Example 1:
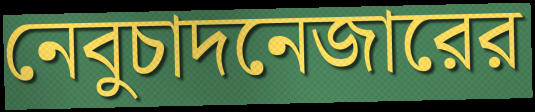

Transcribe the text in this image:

নেবুচাদনেজারের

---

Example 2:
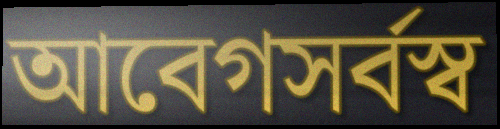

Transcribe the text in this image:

আবেগসর্বস্ব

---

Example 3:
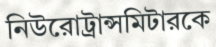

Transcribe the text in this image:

নিউরোট্রান্সমিটারকে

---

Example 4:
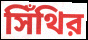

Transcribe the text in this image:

সিঁথির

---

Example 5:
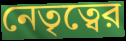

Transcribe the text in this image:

নেতৃত্বের